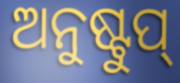
ଅନୁଷ୍ଟୁପ୍